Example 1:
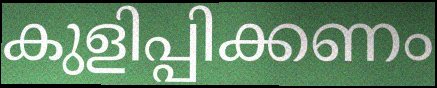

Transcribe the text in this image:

കുളിപ്പിക്കണം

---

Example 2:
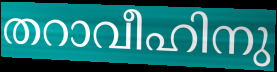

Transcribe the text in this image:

തറാവീഹിനു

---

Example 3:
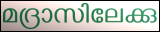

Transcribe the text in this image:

മദ്രാസിലേക്കു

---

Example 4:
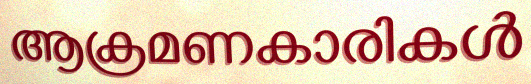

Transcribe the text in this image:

ആക്രമണകാരികൾ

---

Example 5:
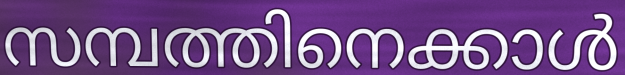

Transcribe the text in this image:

സമ്പത്തിനെക്കാൾ